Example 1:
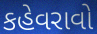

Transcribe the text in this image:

કહેવરાવો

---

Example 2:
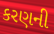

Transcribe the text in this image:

કરણની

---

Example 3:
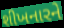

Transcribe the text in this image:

શીખનારને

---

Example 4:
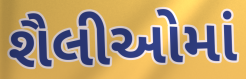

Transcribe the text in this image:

શૈલીઓમાં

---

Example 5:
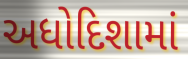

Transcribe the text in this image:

અધોદિશામાં